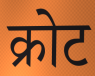
क्रोट